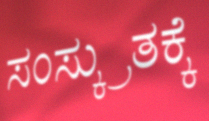
ಸಂಸ್ಕ್ರುತಕ್ಕೆ